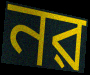
নৱ